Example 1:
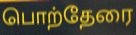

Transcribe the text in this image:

பொற்தேரை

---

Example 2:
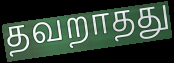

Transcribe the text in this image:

தவறாதது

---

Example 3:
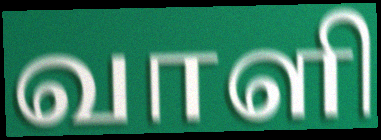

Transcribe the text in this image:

வாளி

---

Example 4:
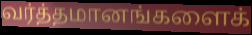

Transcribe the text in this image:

வர்த்தமானங்களைக்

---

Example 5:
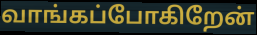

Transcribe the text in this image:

வாங்கப்போகிறேன்